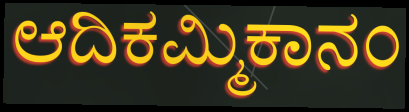
ಆದಿಕಮ್ಮಿಕಾನಂ